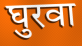
घुरवा